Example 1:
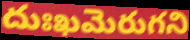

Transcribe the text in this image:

దుఃఖమెరుగని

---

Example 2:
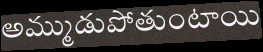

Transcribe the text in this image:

అమ్ముడుపోతుంటాయి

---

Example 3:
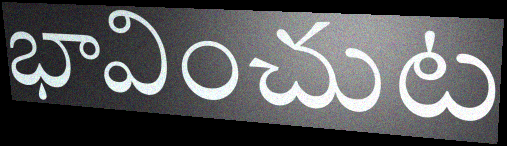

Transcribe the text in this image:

భావించుట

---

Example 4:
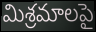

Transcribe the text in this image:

మిశ్రమాలపై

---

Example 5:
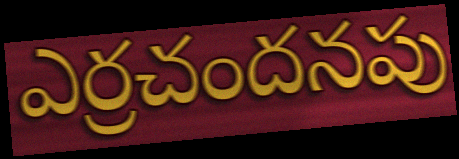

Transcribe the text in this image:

ఎర్రచందనపు